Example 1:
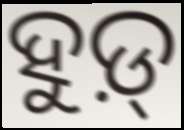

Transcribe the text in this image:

ହୁଡ଼୍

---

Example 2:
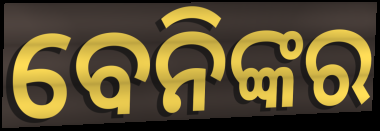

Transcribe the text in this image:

ବେନିଙ୍କର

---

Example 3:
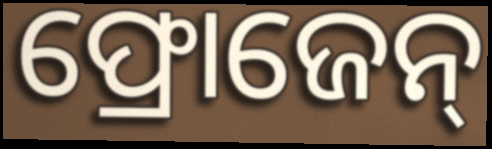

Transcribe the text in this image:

ଫ୍ରୋଜେନ୍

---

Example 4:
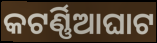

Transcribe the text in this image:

କଟର୍ଣ୍ଣିଆଘାଟ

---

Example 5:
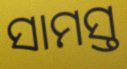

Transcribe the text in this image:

ସାମସ୍ତ